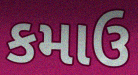
કમાઉ